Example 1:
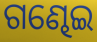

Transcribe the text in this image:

ଗଣ୍ଢେଇ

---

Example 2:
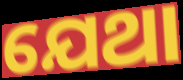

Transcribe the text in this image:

ଯେଥା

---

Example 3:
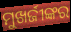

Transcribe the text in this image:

ମୁଖର୍ଜୀଙ୍କର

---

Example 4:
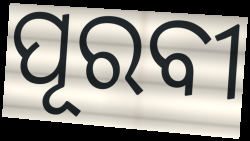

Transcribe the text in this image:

ପୂରବୀ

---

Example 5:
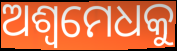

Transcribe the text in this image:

ଅଶ୍ୱମେଧକୁ